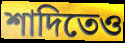
শাদিতেও